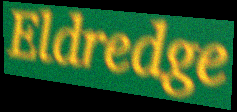
Eldredge